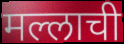
मल्लाची